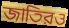
জাতিরও